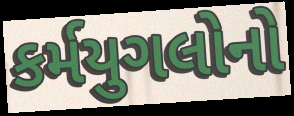
કર્મયુગલોનો